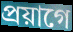
প্রয়াগে